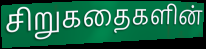
சிறுகதைகளின்